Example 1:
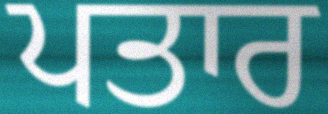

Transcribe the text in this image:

ਪਤਾਰ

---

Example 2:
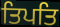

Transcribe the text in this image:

ਤਿਪਤਿ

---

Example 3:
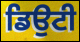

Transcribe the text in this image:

ਡਿਉਟੀ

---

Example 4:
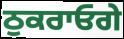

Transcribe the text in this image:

ਠੁਕਰਾਓਗੇ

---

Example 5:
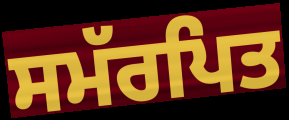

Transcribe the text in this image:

ਸਮੱਰਪਿਤ